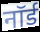
नॉर्ड